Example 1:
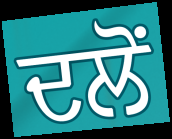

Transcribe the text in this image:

ਦਲੋਂ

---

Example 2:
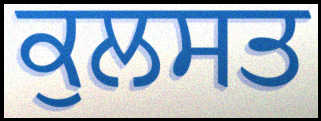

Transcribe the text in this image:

ਕੁਲਸਤ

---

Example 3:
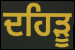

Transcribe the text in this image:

ਦਹਿੜੂ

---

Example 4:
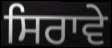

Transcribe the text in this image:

ਸਿਰਾਵੇ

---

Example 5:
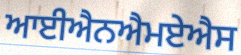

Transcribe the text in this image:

ਆਈਐਨਐਮਏਐਸ